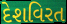
દેશવિરત